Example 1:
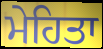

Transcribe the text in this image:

ਮੇਹਿਤਾ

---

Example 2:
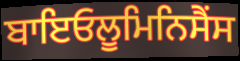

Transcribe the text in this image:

ਬਾਇਓਲੂਮਿਨਿਸੈਂਸ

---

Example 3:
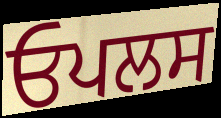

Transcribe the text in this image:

ਓਪਲਸ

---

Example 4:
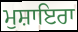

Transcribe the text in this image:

ਮੁਸ਼ਾਇਰਾ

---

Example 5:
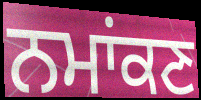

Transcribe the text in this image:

ਨਮਾਂਕਣ